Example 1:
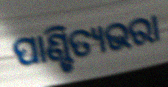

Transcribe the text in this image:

ପାଣ୍ଡିତ୍ୟଭରା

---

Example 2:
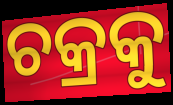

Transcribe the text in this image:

ଚକ୍ରକୁ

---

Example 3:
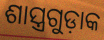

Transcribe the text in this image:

ଶାସ୍ତ୍ରଗୁଡ଼ାକ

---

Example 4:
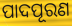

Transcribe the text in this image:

ପାଦପୂରଣ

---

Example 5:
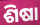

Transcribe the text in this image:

ଶିଷା